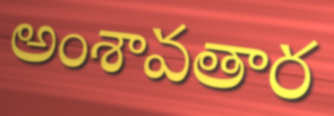
అంశావతార